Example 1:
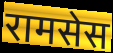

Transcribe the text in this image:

रामसेस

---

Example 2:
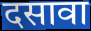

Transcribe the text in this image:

दसावा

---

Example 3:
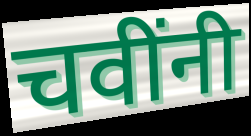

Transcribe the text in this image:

चवींनी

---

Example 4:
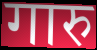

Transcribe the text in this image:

गारु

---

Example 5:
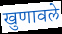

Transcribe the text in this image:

खुणावले